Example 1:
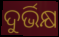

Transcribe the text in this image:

ଦୁର୍ଭିକ୍ଷ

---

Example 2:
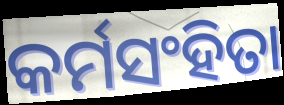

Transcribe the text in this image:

କର୍ମସଂହିତା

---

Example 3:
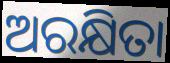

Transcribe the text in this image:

ଅରକ୍ଷିତା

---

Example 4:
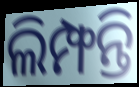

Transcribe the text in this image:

ଲିମ୍ଫନ୍ତି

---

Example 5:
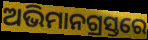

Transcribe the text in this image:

ଅଭିମାନଗ୍ରସ୍ତରେ